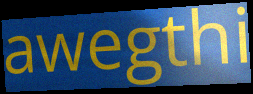
awegthi